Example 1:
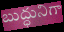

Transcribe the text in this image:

బుద్ధునిగా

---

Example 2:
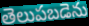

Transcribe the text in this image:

తెలుపబడెను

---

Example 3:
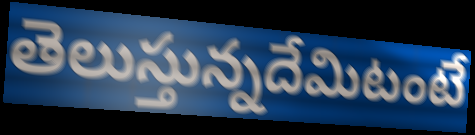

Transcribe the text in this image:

తెలుస్తున్నదేమిటంటే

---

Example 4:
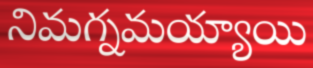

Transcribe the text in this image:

నిమగ్నమయ్యాయి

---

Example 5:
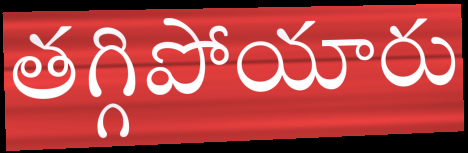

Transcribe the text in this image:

తగ్గిపోయారు